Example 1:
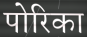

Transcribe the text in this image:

पोरिका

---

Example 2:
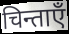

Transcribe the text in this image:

चिन्ताएँ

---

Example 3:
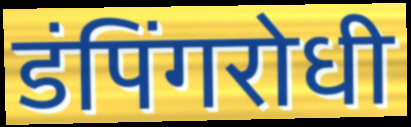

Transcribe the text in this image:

डंपिंगरोधी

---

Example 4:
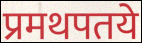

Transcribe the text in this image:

प्रमथपतये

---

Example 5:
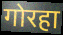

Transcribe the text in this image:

गोरहा